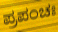
ಪ್ರಪಂಚಃ